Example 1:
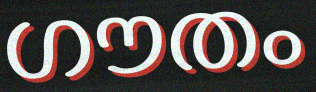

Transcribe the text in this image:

ഗൗതം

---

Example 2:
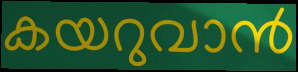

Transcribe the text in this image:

കയറുവാൻ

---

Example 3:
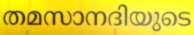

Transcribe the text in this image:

തമസാനദിയുടെ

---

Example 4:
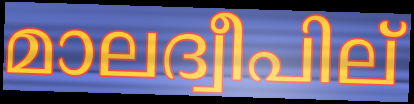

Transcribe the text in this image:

മാലദ്വീപില്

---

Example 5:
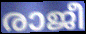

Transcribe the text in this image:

രാജീ